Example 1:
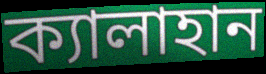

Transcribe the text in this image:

ক্যালাহান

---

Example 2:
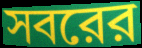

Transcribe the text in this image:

সবরের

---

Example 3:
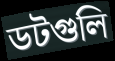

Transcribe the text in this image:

ডটগুলি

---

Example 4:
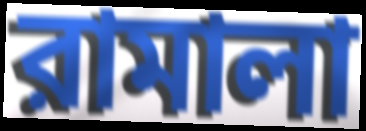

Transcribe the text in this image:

রামালা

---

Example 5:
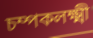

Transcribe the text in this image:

চম্পকলক্ষ্মী